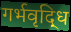
गर्भवृद्धि